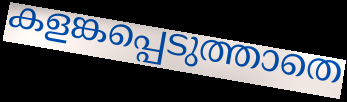
കളങ്കപ്പെടുത്താതെ